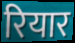
रियार